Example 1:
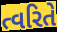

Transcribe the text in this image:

ત્વરિતે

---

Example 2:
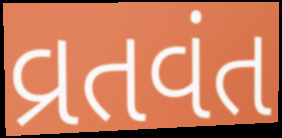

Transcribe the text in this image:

વ્રતવંત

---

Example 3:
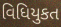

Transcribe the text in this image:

વિધિયુકત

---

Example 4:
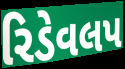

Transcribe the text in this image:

રિડેવલપ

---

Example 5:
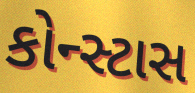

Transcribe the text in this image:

કોન્સ્ટાસ